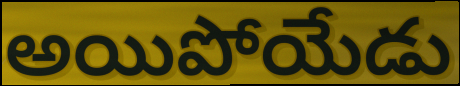
అయిపోయేడు